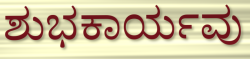
ಶುಭಕಾರ್ಯವು